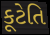
કૂટેતિ